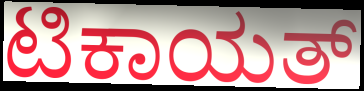
ಟಿಕಾಯತ್